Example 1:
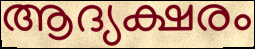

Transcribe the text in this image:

ആദ്യക്ഷരം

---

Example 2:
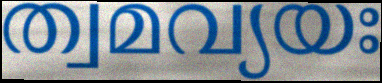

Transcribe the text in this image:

ത്വമവ്യയഃ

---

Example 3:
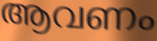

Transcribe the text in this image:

ആവണം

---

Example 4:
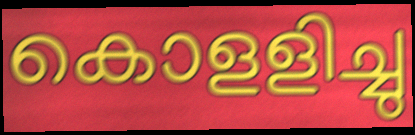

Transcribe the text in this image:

കൊളളിച്ചു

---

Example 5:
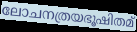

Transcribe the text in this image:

ലോചനത്രയഭൂഷിതമ്